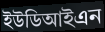
ইউডিআইএন